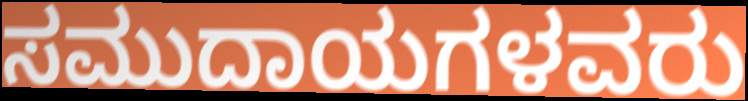
ಸಮುದಾಯಗಳವರು